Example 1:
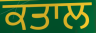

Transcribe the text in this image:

ਕਤਾਲ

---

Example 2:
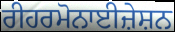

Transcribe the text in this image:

ਰੀਹਰਮੋਨਾਈਜ਼ੇਸ਼ਨ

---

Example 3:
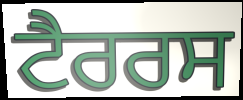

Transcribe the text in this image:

ਟੈਰਰਸ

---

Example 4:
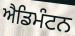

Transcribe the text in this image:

ਐਡਿਮੰਟਨ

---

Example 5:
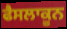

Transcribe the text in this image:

ਫੈਸਲਾਕੂਨ